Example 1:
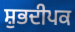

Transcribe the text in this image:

ਸ਼ੁਭਦੀਪਕ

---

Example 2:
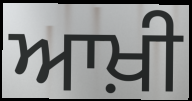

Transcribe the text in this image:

ਆਖ਼ੀ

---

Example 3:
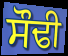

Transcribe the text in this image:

ਸੌਢੀ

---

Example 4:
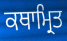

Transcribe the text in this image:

ਕਥਾਮ੍ਰਿਤ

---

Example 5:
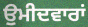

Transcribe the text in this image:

ਉੁਮੀਦਵਾਰਾਂ